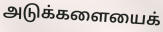
அடுக்களையைக்